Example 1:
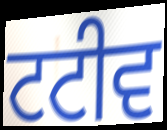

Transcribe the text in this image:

ਟਟੀਵ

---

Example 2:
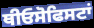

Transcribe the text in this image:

ਥੀਓਸੋਫਿਸਟਾਂ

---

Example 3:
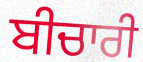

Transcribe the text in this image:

ਬੀਚਾਰੀ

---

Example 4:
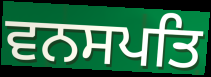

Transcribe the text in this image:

ਵਨਸਪਤਿ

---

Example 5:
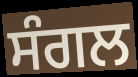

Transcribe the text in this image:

ਸੰਗਲ